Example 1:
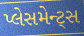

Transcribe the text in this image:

પ્લેસમેન્ટ્સ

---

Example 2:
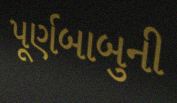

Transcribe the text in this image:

પૂર્ણબાબુની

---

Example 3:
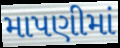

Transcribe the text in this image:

માપણીમાં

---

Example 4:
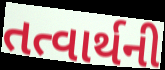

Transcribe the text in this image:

તત્વાર્થની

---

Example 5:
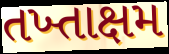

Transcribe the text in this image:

તખ્તાક્ષમ